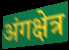
अंगक्षेत्र